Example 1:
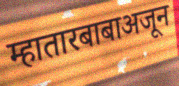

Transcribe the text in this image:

म्हातारबाबाअजून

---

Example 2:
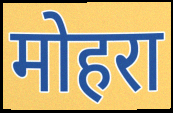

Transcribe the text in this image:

मोहरा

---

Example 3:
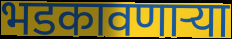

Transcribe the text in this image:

भडकावणाऱ्या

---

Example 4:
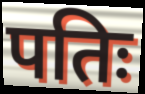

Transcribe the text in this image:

पतिः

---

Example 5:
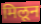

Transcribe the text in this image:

मिलून